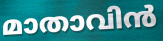
മാതാവിൻ